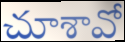
చూశావో